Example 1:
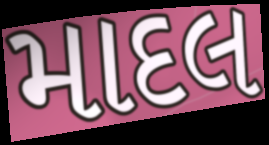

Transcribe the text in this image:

માદલ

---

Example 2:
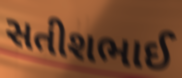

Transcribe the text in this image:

સતીશભાઈ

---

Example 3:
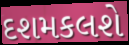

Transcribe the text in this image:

દશમકલશે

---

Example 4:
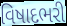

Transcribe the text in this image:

વિષાદભરી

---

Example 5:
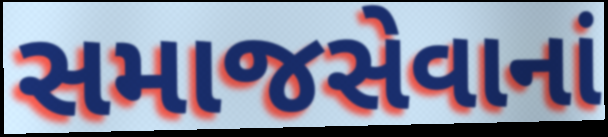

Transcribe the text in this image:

સમાજસેવાનાં